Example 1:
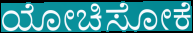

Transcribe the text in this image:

ಯೋಚಿಸೋಕೆ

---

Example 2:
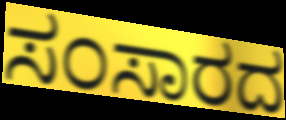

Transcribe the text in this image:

ಸಂಸಾರದ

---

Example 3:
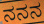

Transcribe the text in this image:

ನನನ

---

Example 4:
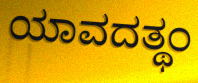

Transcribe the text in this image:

ಯಾವದತ್ಥಂ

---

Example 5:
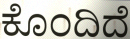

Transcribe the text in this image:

ಕೊಂದಿದೆ